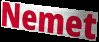
Nemet